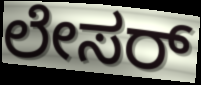
ಲೇಸರ್